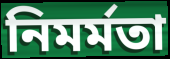
নিমর্মতা